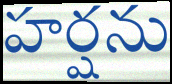
హర్షను